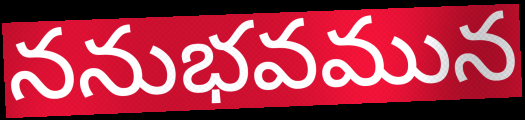
ననుభవమున